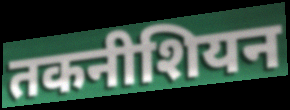
तकनीशियन